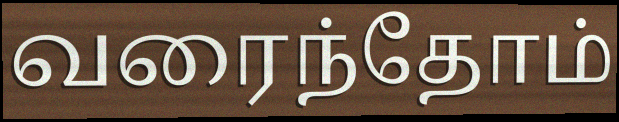
வரைந்தோம்